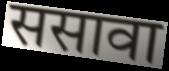
ससावा